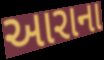
આરાના